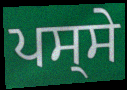
ਪਸ੍ਸੇ